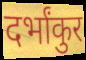
दर्भांकुर